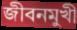
জীবনমুখী